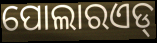
ପୋଲାରଏଡ୍